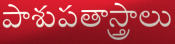
పాశుపతాస్త్రాలు